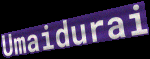
Umaidurai